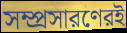
সম্প্রসারণেরই